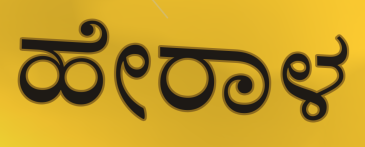
ಹೇರಾಳ